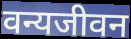
वन्यजीवन